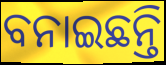
ବନାଇଛନ୍ତି